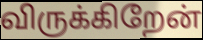
விருக்கிறேன்